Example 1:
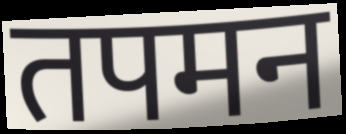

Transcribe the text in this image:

तपमन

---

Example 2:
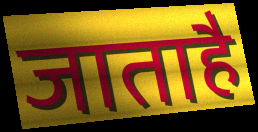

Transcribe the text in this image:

जाताहै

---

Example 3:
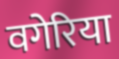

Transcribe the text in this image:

वगेरिया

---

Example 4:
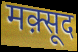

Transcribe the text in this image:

मक़्सूद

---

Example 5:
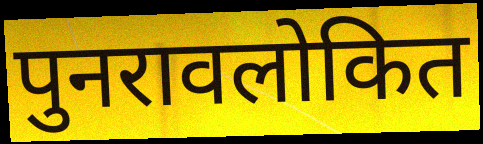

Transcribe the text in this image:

पुनरावलोकित